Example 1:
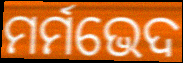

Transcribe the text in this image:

ମର୍ମଭେଦ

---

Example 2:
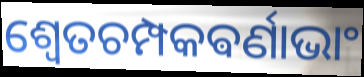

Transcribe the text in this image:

ଶ୍ଵେତଚମ୍ପକଵର୍ଣାଭାଂ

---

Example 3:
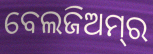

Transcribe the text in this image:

ବେଲଜିଅମ୍‌ର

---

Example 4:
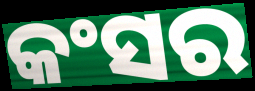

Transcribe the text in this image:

କଂସର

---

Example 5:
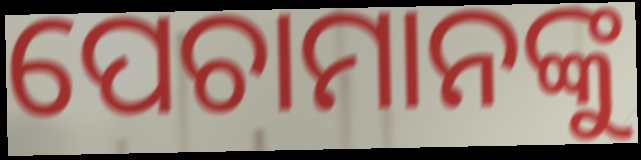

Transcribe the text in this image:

ପେଚାମାନଙ୍କୁ